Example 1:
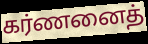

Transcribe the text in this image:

கர்ணனைத்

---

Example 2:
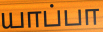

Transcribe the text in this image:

யாப்பா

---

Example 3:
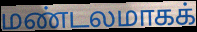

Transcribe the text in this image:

மண்டலமாகக்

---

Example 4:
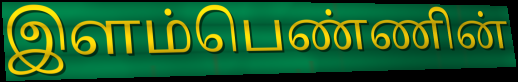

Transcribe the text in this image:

இளம்பெண்ணின்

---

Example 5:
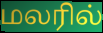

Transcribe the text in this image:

மலரில்